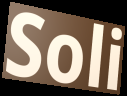
Soli